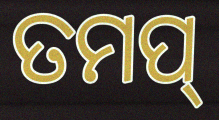
ତମପ୍